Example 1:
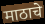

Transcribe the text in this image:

माठाचे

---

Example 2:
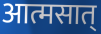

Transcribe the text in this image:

आत्मसात्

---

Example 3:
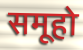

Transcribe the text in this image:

समूहो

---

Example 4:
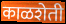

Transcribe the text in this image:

काळशेती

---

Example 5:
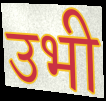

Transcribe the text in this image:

उभी